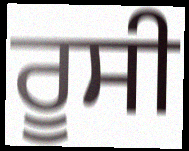
ਰੂਸੀ